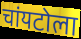
चांयटोला